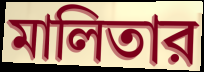
মালিতার